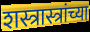
शस्त्रास्त्रांच्या